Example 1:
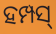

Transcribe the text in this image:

ହମ୍ପସ୍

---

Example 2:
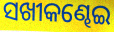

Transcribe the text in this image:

ସଖୀକଣ୍ଢେଇ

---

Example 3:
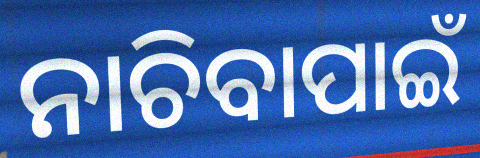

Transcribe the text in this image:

ନାଚିବାପାଇଁ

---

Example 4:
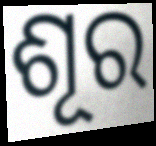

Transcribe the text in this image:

ଶୂର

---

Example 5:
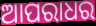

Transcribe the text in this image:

ଆପରାଧର